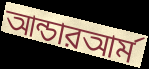
আন্ডারআর্ম